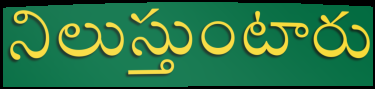
నిలుస్తుంటారు